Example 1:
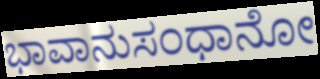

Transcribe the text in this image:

ಭಾವಾನುಸಂಧಾನೋ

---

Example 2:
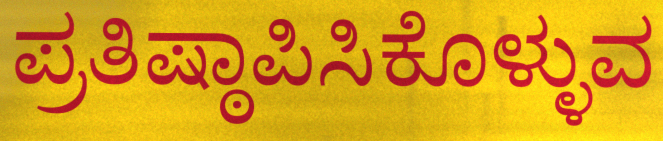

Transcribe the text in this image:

ಪ್ರತಿಷ್ಠಾಪಿಸಿಕೊಳ್ಳುವ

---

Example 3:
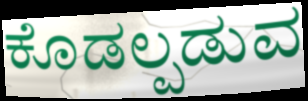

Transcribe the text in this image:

ಕೊಡಲ್ಪಡುವ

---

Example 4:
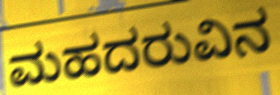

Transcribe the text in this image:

ಮಹದರುವಿನ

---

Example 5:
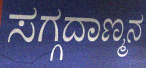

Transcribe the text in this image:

ಸಗ್ಗದಾಣ್ಮನ